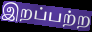
இறப்பற்ற